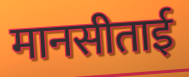
मानसीताई